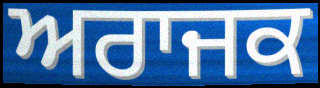
ਅਰਾਜਕ